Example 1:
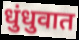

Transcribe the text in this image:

धुंधुवात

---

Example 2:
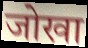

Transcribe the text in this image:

जोखा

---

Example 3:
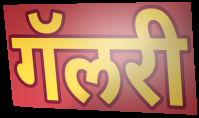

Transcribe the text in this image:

गॅलरी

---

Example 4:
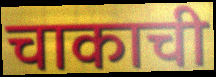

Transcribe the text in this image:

चाकाची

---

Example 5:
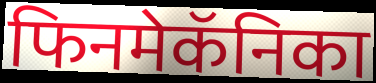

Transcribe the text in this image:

फिनमेकॅनिका